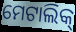
ମେଟାଲିକ୍